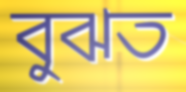
বুঝত